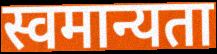
स्वमान्यता